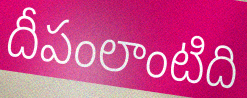
దీపంలాంటిది